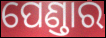
ପେଣ୍ଡାର